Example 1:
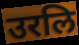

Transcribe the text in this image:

उरलि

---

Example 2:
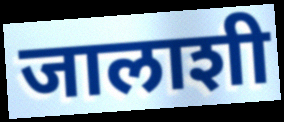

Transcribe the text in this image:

जालाशी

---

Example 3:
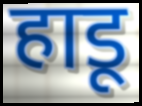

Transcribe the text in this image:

हाडू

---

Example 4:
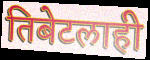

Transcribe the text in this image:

तिबेटलाही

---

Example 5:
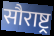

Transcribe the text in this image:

सौराष्ट्र